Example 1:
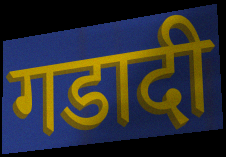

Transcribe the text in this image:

गडादी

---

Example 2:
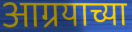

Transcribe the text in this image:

आग्रयाच्या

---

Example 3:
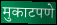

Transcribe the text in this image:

मुकाटपणे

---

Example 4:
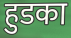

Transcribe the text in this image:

हुडका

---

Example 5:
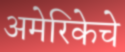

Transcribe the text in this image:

अमेरिकेचे